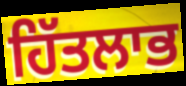
ਹਿੱਤਲਾਭ